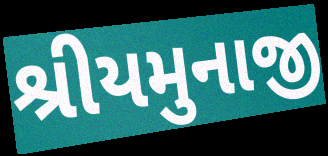
શ્રીયમુનાજી